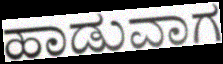
ಹಾಡುವಾಗ